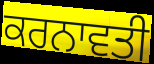
ਕਰਨਾਵਤੀ